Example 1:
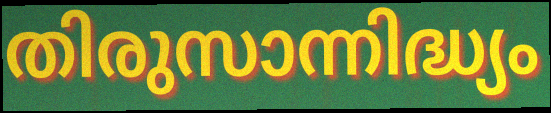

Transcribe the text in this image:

തിരുസാന്നിദ്ധ്യം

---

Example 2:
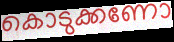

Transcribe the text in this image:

കൊടുക്കണോ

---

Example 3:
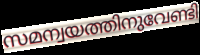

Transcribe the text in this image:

സമന്വയത്തിനുവേണ്ടി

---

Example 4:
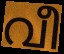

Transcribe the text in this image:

വീ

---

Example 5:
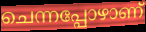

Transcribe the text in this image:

ചെന്നപ്പോഴാണ്